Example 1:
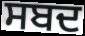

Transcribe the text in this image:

ਸਬਦ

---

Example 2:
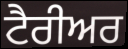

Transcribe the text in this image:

ਟੈਰੀਅਰ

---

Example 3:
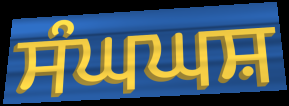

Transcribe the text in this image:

ਸੰਘਘਸ਼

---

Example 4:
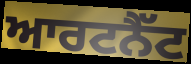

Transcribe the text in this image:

ਆਰਟਨੈੱਟ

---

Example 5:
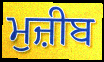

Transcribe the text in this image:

ਮੁਜ਼ੀਬ